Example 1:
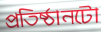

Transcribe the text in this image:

প্ৰতিষ্ঠানটো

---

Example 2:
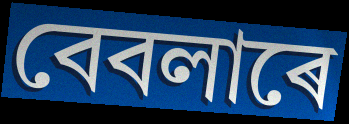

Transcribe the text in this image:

বেবলাৰে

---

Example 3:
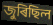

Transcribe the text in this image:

জুৰিছিল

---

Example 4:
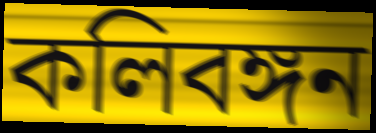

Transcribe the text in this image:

কলিবঙ্গন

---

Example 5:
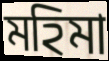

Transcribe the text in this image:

মহিমা